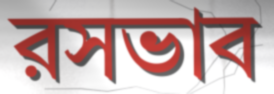
রসভাব